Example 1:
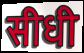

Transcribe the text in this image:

सीधी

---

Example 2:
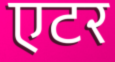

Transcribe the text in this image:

एटर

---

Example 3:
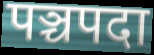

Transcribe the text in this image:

पञ्चपदा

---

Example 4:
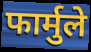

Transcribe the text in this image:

फार्मुले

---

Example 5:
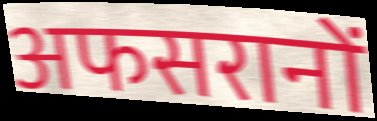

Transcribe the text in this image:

अफसरानों